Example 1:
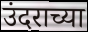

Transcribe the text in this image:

उंदराच्या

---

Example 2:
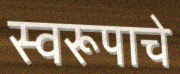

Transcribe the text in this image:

स्वरूपाचे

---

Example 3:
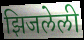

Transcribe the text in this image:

झिजलेली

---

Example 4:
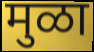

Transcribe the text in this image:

मुळा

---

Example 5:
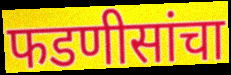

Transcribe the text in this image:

फडणीसांचा